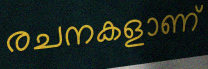
രചനകളാണ്